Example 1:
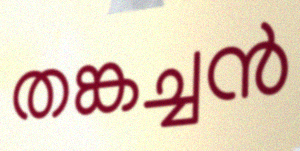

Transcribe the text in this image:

തങ്കച്ചൻ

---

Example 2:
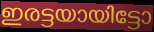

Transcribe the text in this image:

ഇരട്ടയായിട്ടോ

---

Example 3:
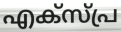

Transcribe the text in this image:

എക്സ്പ്ര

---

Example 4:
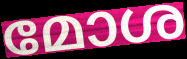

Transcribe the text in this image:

മോശ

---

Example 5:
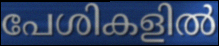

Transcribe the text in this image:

പേശികളിൽ